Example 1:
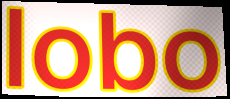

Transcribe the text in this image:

lobo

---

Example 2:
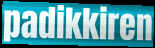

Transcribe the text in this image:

padikkiren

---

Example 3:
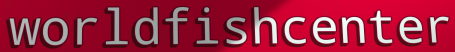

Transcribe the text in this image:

worldfishcenter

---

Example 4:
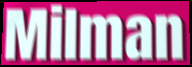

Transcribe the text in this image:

Milman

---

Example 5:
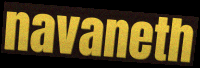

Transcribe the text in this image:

navaneth